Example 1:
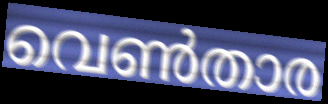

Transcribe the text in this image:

വെൺതാര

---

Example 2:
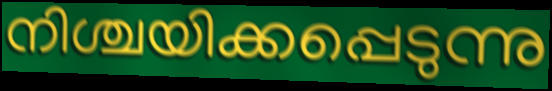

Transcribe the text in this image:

നിശ്ചയിക്കപ്പെടുന്നു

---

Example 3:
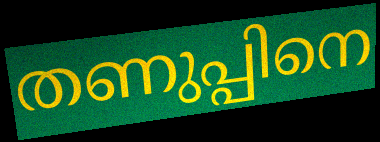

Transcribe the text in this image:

തണുപ്പിനെ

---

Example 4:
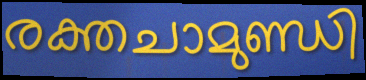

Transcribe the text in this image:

രക്തചാമുണ്ഡി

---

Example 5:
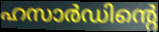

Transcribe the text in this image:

ഹസാർഡിന്റെ